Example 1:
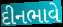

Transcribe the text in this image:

દીનભાવે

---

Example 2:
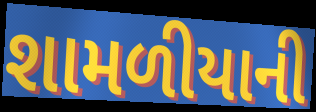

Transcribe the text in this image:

શામળીયાની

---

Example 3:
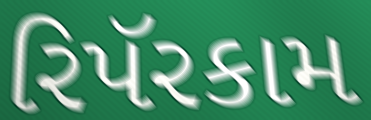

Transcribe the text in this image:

રિપૅરકામ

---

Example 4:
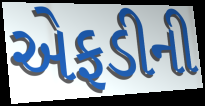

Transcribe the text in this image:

એફડીની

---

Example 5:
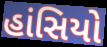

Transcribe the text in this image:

હાંસિયો